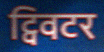
ट्विवटर